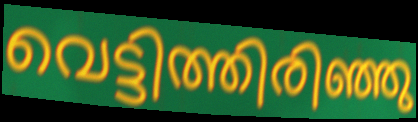
വെട്ടിത്തിരിഞ്ഞു